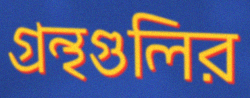
গ্রন্থগুলির